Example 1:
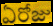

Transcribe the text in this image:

ఏరోజు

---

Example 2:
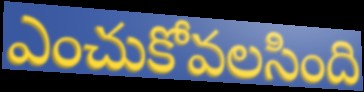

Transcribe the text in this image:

ఎంచుకోవలసింది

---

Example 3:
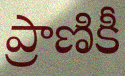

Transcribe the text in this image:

ప్రాణికీ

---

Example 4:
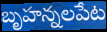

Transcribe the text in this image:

బృహన్నలపేట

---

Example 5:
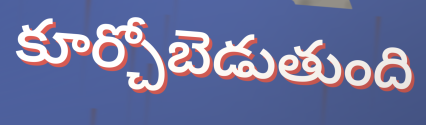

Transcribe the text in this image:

కూర్చోబెడుతుంది